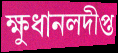
ক্ষুধানলদীপ্ত